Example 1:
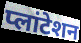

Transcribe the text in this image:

प्लांटेशन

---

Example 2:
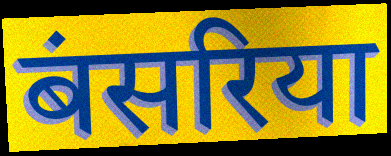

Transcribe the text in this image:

बंसरिया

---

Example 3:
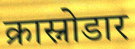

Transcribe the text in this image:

क्रास्नोडार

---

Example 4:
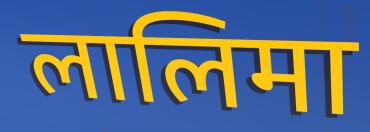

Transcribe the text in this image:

लालिमा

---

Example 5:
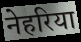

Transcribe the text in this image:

नेहरिया